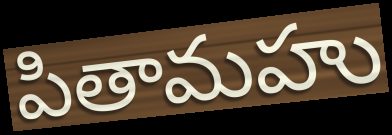
పితామహు